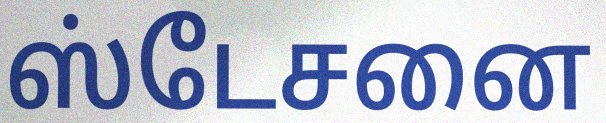
ஸ்டேசனை